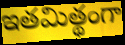
ఇతమిత్థంగా